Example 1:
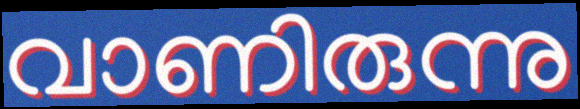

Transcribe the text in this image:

വാണിരുന്നു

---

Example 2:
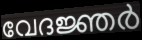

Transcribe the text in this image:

വേദജ്ഞർ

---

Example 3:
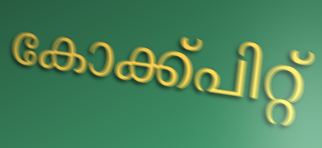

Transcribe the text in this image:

കോക്ക്പിറ്റ്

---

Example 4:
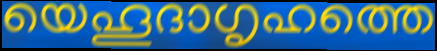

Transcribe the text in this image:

യെഹൂദാഗൃഹത്തെ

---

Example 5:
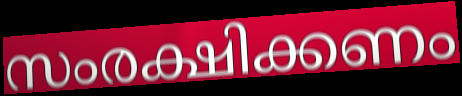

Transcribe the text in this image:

സംരക്ഷിക്കണം